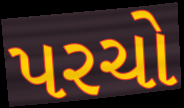
પરચો